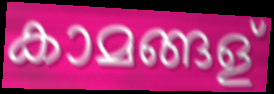
കാമങ്ങള്